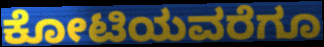
ಕೋಟಿಯವರೆಗೂ